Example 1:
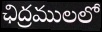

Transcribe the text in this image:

ఛిద్రములలో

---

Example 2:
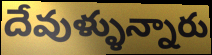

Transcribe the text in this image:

దేవుళ్ళున్నారు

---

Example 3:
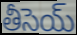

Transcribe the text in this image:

తీసెయ్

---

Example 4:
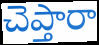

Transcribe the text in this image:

చెప్తారా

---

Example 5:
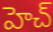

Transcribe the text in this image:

హెచ్